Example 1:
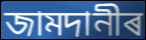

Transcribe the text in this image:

জামদানীৰ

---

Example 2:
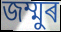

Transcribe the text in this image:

জম্মুৰ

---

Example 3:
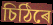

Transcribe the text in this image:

চিঠিৰে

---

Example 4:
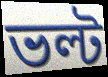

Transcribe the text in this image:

ভল্ট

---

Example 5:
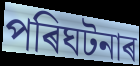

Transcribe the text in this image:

পৰিঘটনাৰ